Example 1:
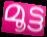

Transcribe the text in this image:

മൂട്ട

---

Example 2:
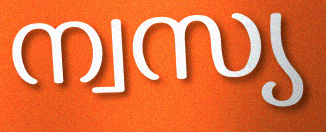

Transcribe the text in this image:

ന്വസ്യ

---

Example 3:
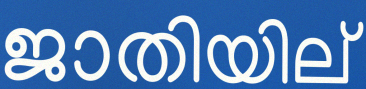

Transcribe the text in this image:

ജാതിയില്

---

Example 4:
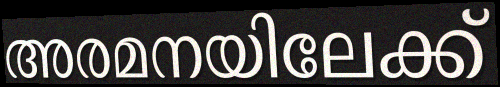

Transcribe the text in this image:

അരമനയിലേക്ക്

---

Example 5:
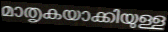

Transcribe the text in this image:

മാതൃകയാക്കിയുള്ള